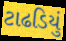
ટાઢડિયું